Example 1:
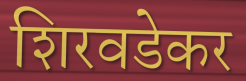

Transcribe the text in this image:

शिरवडेकर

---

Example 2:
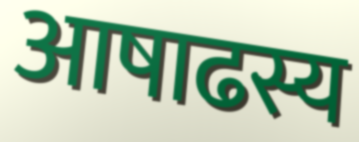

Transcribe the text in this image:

आषाढस्य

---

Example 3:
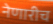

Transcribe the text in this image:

नेणारीच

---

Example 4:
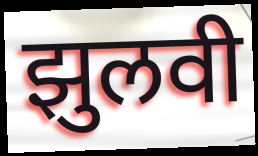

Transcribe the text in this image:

झुलवी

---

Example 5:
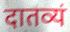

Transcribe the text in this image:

दातव्यं